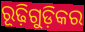
ରୂଢ଼ିଗୁଡ଼ିକର